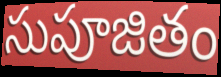
సుపూజితం